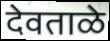
देवताळे